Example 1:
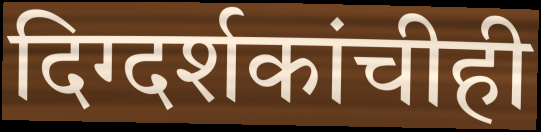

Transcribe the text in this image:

दिग्दर्शकांचीही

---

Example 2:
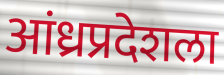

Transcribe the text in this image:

आंध्रप्रदेशला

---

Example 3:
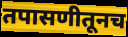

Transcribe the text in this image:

तपासणीतूनच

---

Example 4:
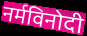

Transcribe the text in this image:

नर्मविनोदी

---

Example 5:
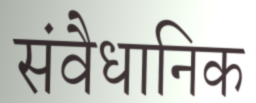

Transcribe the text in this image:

संवैधानिक